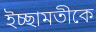
ইচ্ছামতীকে